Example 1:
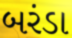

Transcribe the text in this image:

બરંડા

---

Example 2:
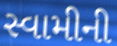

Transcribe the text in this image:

સ્વામીની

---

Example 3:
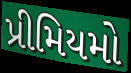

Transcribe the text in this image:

પ્રીમિયમો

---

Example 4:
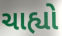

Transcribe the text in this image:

ચાહ્યો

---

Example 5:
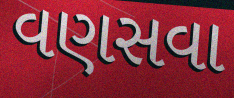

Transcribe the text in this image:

વણસવા